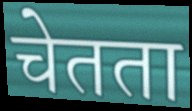
चेतता